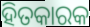
ହିତକାରକ